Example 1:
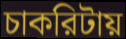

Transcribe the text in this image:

চাকরিটায়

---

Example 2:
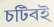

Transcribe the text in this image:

চটিবই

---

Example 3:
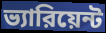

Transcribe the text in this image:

ভ্যারিয়েন্ট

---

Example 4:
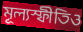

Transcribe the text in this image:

মূল্যস্ফীতিও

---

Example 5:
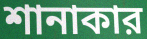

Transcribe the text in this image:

শানাকার